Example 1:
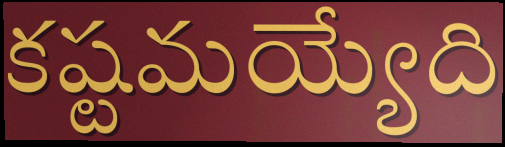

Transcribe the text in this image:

కష్టమయ్యేది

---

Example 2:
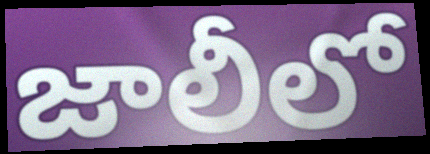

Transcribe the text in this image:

జాలీలో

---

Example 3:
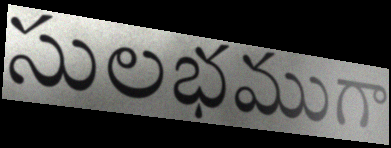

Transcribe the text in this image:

సులభముగా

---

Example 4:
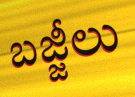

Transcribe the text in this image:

బజ్జీలు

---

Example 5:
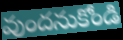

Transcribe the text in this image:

వుందనుకోండి